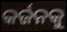
କର୍ଜନକୁ